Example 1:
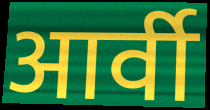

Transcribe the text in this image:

आर्वी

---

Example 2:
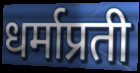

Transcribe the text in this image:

धर्माप्रती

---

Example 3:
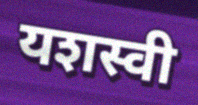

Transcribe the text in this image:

यशस्वी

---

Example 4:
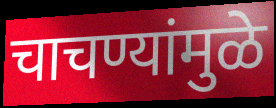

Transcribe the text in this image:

चाचण्यांमुळे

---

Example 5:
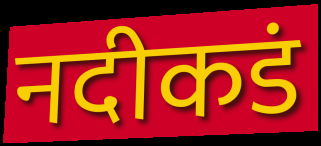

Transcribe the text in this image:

नदीकडं